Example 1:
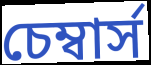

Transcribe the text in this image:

চেম্বার্স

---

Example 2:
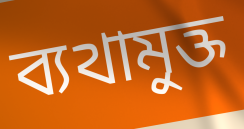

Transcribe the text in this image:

ব্যথামুক্ত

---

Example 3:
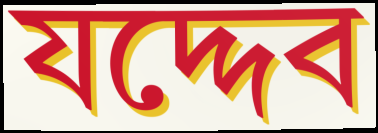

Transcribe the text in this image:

যদ্দেব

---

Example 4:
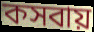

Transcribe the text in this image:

কসবায়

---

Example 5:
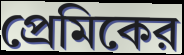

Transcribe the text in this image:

প্রেমিকের